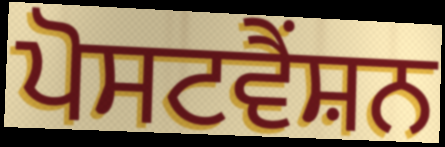
ਪੋਸਟਵੈਂਸ਼ਨ